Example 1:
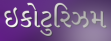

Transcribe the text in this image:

ઇકોટુરિઝમ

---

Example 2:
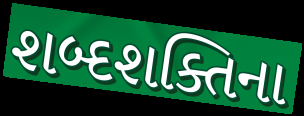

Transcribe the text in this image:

શબ્દશક્તિના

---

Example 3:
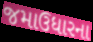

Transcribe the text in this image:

જમાઉધારના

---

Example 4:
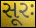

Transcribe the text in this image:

સૂરઃ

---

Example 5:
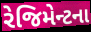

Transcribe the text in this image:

રેજિમેન્ટના